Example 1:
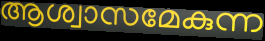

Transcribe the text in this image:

ആശ്വാസമേകുന്ന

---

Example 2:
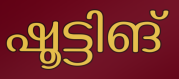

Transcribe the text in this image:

ഷൂട്ടിങ്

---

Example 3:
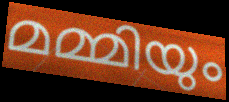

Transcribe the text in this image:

മമ്മിയും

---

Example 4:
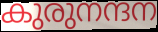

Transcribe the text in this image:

കുരുനന്ദന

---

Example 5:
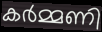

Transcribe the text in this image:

കർമ്മണി